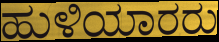
ಹುಳಿಯಾರರು